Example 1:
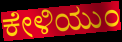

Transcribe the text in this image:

ಕೇಳಿಯುಂ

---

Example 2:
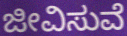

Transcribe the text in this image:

ಜೀವಿಸುವೆ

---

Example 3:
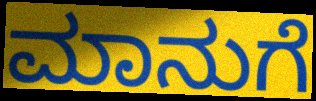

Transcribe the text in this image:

ಮಾನುಗೆ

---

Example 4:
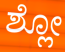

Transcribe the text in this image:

ಶ್ಲೋ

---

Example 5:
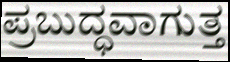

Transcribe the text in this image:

ಪ್ರಬುದ್ಧವಾಗುತ್ತ